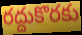
రద్దుకొరకు